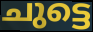
ചുട്ടെ